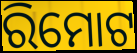
ରିମୋଟ